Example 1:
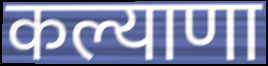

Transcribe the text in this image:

कल्याणा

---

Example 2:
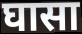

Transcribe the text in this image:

घासा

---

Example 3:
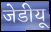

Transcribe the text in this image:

जेडीयू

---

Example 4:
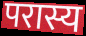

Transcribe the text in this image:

परास्य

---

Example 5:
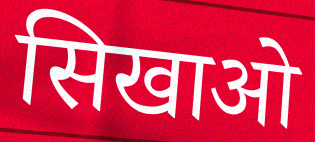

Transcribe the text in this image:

सिखाओ